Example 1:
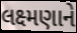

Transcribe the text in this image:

લક્ષ્મણાને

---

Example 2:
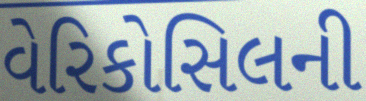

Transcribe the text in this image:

વેરિકોસિલની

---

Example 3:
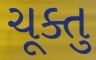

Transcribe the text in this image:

ચૂક્તુ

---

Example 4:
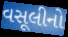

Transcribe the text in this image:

વસૂલીનો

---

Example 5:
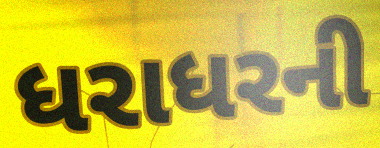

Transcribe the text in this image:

ધરાધરની